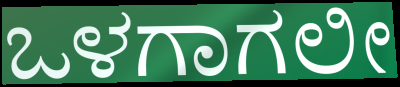
ಒಳಗಾಗಲೀ